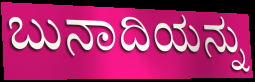
ಬುನಾದಿಯನ್ನು